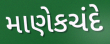
માણેકચંદે